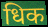
धिक